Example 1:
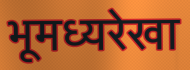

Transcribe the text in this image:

भूमध्यरेखा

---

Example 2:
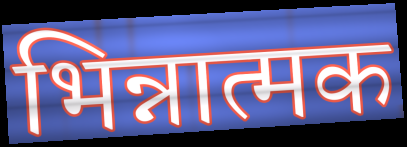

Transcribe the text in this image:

भिन्नात्मक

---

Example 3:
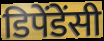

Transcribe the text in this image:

डिपेंडेंसी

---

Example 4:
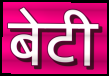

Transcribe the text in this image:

बेटी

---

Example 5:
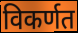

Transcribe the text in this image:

विकर्णत